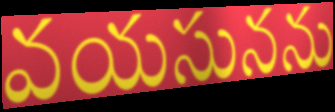
వయసునను